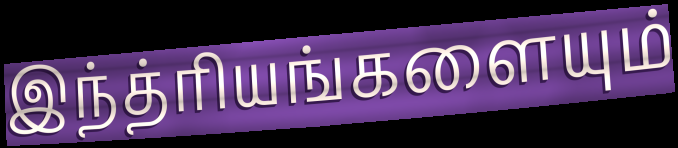
இந்த்ரியங்களையும்